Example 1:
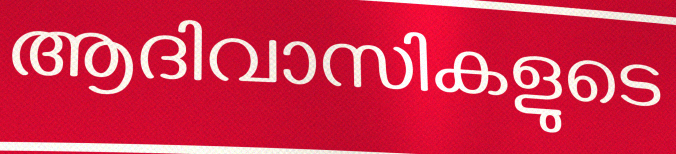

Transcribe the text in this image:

ആദിവാസികളുടെ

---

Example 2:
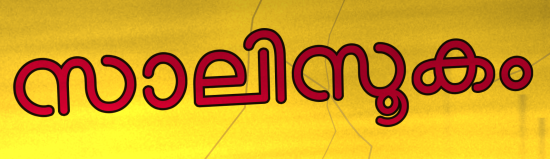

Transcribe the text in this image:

സാലിസൂകം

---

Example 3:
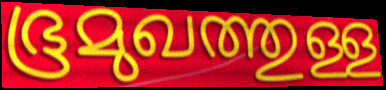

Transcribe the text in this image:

ഭൂമുഖത്തുള്ള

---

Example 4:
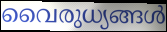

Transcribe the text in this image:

വൈരുധ്യങ്ങൾ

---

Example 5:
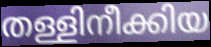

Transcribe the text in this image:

തള്ളിനീക്കിയ